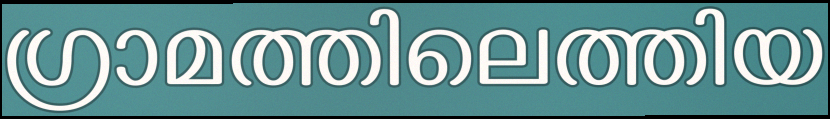
ഗ്രാമത്തിലെത്തിയ